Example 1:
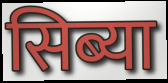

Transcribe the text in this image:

सिब्या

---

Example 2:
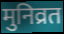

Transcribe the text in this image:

मुनिव्रत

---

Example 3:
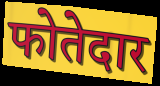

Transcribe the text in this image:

फोतेदार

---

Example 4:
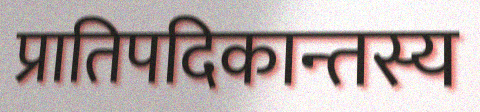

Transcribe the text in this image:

प्रातिपदिकान्तस्य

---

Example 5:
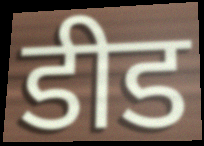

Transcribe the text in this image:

डीड